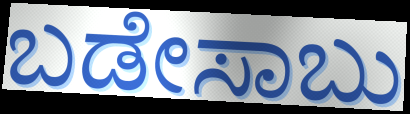
ಬಡೇಸಾಬು